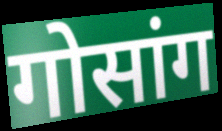
गोसांग